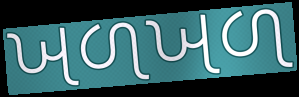
ખળખળ